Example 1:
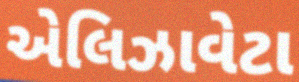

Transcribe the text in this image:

એલિઝાવેટા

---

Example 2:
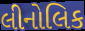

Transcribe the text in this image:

લીનોલિક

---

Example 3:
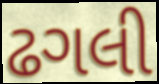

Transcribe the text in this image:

ઢગલી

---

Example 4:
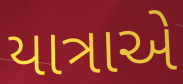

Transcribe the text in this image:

યાત્રાએ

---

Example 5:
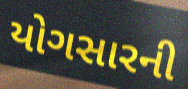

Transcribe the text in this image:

યોગસારની